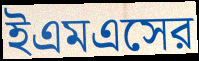
ইএমএসের